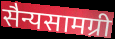
सैन्यसामग्री